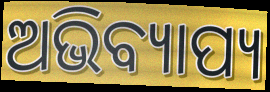
ଅଭିବ୍ୟାପ୍ୟ